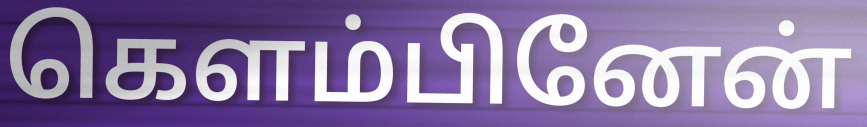
கெளம்பினேன்